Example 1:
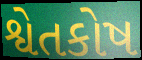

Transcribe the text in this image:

શ્વેતકોષ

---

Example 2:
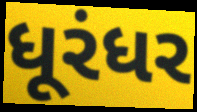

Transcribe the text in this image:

ધૂરંધર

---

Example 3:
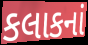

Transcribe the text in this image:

કલાકનાં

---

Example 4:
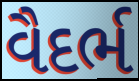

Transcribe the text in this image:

વૈદર્ભ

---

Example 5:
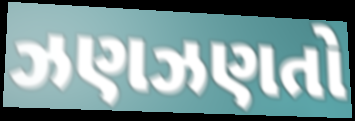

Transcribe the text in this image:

ઝણઝણતો